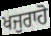
ਖਜੁਰਾਹੋ